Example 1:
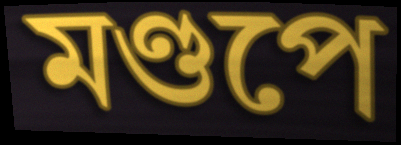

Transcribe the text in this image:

মণ্ডপে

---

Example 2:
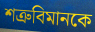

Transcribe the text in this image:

শত্রুবিমানকে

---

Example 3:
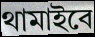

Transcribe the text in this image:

থামাইবে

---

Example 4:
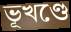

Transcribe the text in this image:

ভূখণ্ডে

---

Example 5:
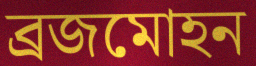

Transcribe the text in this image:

ব্রজমোহন